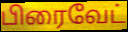
பிரைவேட்